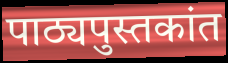
पाठ्यपुस्तकांत